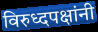
विरुध्दपक्षांनी